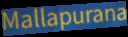
Mallapurana